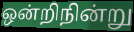
ஒன்றிநின்று